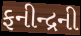
ફનીન્દ્રની